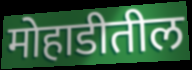
मोहाडीतील